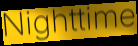
Nighttime